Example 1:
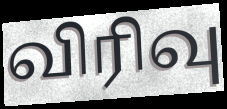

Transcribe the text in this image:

விரிவு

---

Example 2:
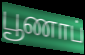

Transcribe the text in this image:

பூணாப்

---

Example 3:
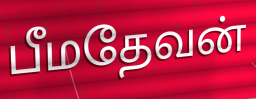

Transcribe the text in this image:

பீமதேவன்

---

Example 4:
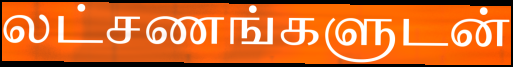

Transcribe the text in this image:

லட்சணங்களுடன்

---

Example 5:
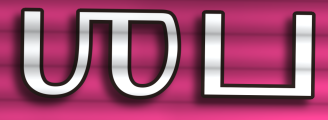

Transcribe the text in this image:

ஶப